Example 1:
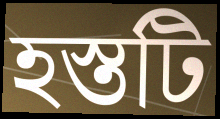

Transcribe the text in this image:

হস্তটি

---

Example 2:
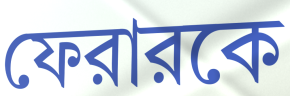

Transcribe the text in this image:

ফেরারকে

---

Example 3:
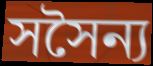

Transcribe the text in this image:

সসৈন্য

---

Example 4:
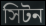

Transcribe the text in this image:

সিটন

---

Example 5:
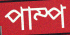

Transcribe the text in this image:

পাম্প